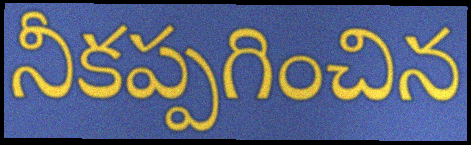
నీకప్పగించిన